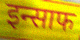
इन्साफ